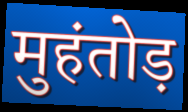
मुहंतोड़